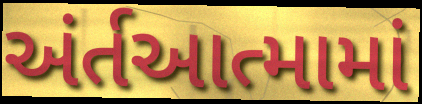
અંર્તઆત્મામાં